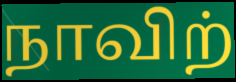
நாவிற்